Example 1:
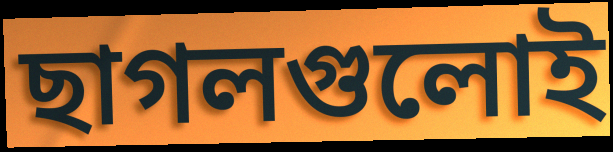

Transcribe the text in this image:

ছাগলগুলোই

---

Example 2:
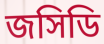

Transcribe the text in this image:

জসিডি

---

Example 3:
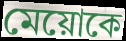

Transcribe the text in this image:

মেয়োকে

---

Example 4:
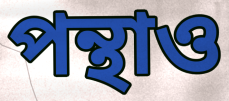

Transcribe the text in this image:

পন্থাও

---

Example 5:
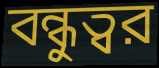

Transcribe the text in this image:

বন্ধুত্বর